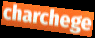
charchege